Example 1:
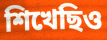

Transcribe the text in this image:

শিখেছিও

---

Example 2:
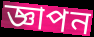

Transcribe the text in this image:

জ্ঞাপন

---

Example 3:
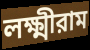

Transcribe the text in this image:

লক্ষ্মীরাম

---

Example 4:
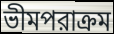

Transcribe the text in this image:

ভীমপরাক্রম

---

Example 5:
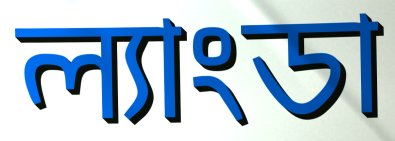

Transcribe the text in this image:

ল্যাংডা